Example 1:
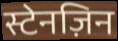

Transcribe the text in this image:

स्टेनज़िन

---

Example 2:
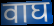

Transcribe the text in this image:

वाघ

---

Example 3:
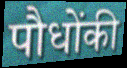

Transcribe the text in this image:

पौधोंकी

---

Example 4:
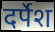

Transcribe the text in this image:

दर्पेश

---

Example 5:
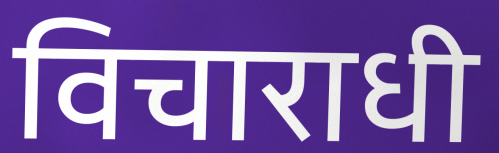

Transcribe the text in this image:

विचाराधी